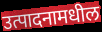
उत्पादनामधील